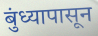
बुंध्यापासून